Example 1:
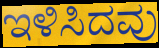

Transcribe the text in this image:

ಇಳಿಸಿದವು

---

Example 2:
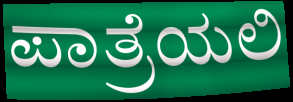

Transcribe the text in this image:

ಪಾತ್ರೆಯಲಿ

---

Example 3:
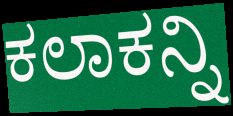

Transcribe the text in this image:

ಕಲಾಕನ್ನಿ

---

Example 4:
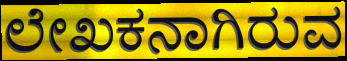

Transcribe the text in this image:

ಲೇಖಕನಾಗಿರುವ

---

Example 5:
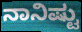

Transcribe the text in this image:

ನಾನಿಷ್ಟು